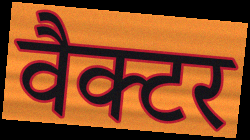
वैक्टर